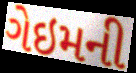
ગેઇમની